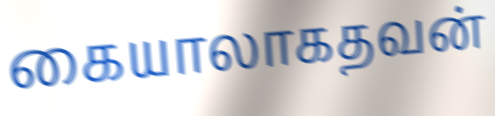
கையாலாகதவன்